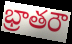
భ్రాతరౌ